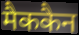
मैककैन